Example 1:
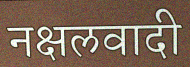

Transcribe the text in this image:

नक्षलवादी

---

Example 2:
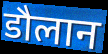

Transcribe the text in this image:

डौलान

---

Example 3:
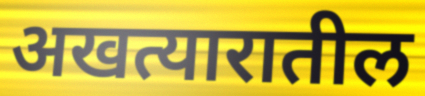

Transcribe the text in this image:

अखत्यारातील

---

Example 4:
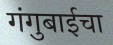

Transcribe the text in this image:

गंगुबाईचा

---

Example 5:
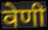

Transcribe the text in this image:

वेणी